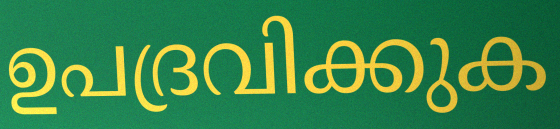
ഉപദ്രവിക്കുക